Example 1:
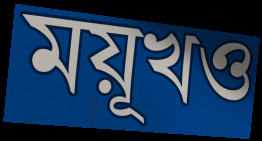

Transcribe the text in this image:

ময়ূখও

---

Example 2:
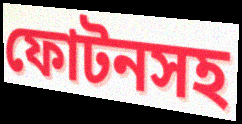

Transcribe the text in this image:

ফোটনসহ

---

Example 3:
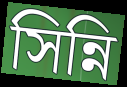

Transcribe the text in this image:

সিন্নি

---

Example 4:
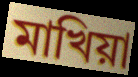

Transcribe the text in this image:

মাখিয়া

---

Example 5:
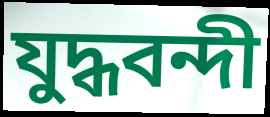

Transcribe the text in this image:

যুদ্ধবন্দী